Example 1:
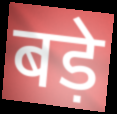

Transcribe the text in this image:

बड़े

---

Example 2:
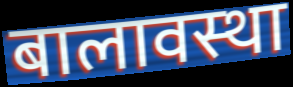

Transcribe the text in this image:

बालावस्था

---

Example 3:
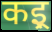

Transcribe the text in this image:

कइ्र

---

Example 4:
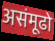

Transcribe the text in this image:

असंमूढो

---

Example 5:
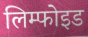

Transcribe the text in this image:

लिम्फोइड